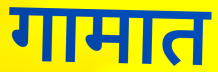
गामात